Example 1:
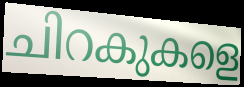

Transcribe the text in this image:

ചിറകുകളെ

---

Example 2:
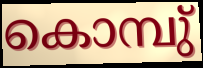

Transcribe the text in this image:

കൊമ്പു്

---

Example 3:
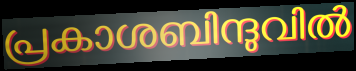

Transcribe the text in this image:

പ്രകാശബിന്ദുവിൽ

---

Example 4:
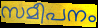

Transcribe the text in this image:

സമീപനം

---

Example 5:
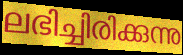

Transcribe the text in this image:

ലഭിച്ചിരിക്കുന്നു